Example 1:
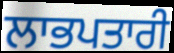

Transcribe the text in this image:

ਲਾਭਪਤਾਰੀ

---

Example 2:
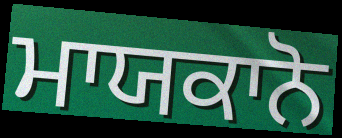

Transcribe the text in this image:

ਮਾਯਕਾਨੋ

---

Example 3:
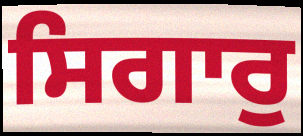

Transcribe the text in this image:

ਸਿਗਾਰੁ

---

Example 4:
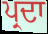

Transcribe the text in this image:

ਪ੍ਰਦਾ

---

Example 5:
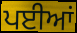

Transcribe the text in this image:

ਪਈਆਂ